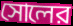
সোলের